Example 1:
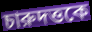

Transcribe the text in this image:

চারুদত্তকে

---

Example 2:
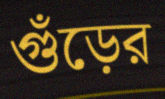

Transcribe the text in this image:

গুঁড়ের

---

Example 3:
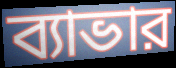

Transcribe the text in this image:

ব্যাভার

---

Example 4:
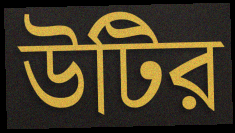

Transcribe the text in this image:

উটির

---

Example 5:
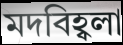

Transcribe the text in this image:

মদবিহ্বলা